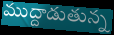
ముద్దాడుతున్న